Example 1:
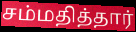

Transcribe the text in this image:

சம்மதித்தார்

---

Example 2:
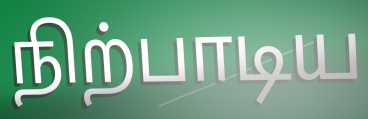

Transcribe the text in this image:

நிற்பாடிய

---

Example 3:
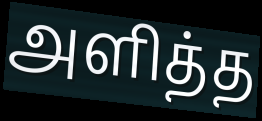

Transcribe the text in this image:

அளித்த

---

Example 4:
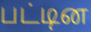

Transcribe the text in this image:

பட்டின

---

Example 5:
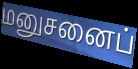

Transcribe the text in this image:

மனுசனைப்